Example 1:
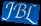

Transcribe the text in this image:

JBL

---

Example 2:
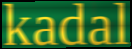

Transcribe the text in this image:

kadal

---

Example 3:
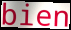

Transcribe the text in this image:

bien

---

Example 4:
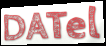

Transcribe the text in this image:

DATel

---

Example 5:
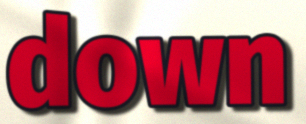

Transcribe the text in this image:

down